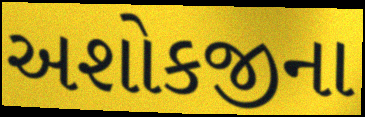
અશોકજીના